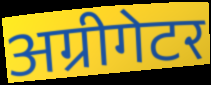
अग्रीगेटर